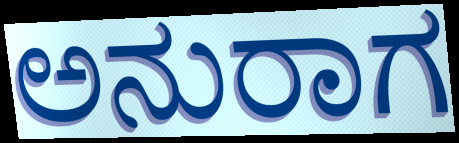
ಅನುರಾಗ